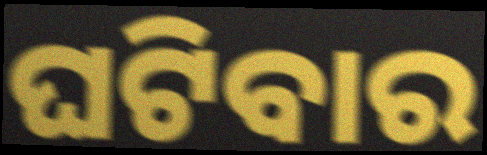
ଘଟିବାର